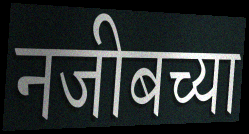
नजीबच्या